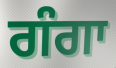
ਗੰਗਾ